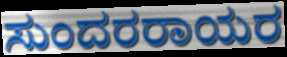
ಸುಂದರರಾಯರ